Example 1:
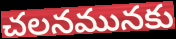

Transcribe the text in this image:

చలనమునకు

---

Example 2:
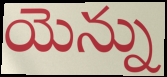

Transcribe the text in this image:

యెన్ను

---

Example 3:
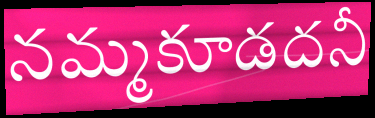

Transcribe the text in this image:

నమ్మకూడదనీ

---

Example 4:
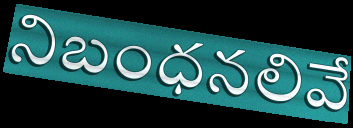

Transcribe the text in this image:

నిబంధనలివే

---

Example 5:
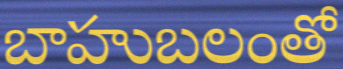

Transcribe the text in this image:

బాహుబలంతో